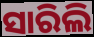
ସାରିଲି